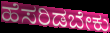
ಹೆಸರಿಡಬೇಕು